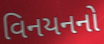
વિનયનનો